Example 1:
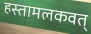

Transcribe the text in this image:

हस्तामलकवत्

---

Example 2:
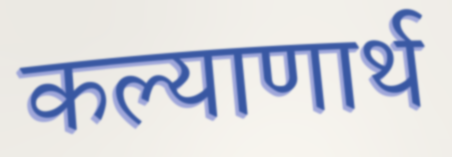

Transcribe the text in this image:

कल्याणार्थ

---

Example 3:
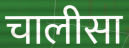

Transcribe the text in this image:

चालीसा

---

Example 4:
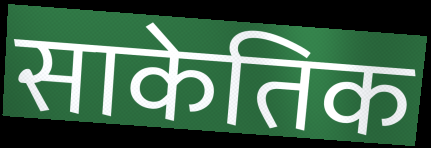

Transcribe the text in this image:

साकेतिक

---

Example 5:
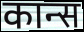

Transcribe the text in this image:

कान्स